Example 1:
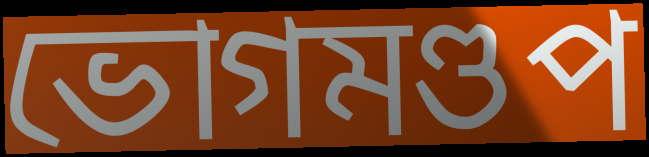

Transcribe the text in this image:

ভোগমণ্ডপ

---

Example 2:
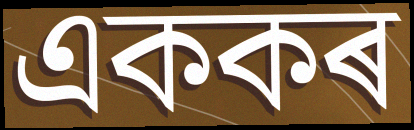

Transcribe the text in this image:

এককৰ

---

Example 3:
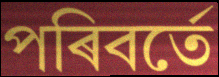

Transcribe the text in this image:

পৰিবৰ্তে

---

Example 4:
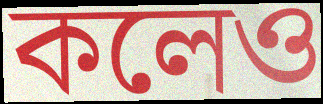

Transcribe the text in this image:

কলেও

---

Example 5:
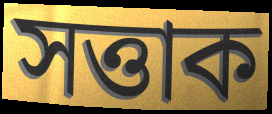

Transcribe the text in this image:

সত্তাক